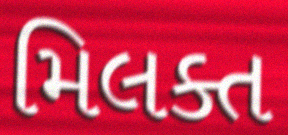
મિલક્ત